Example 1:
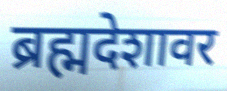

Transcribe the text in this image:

ब्रह्मदेशावर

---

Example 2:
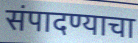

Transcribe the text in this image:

संपादण्याचा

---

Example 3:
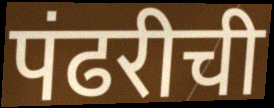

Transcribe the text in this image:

पंढरीची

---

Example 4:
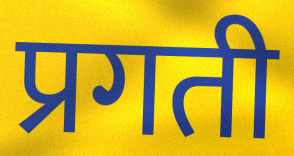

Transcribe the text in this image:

प्रगती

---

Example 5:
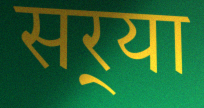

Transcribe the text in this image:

सर्या